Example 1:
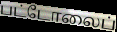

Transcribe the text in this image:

பட்டோலைப்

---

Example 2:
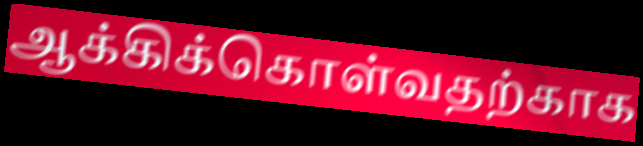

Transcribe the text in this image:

ஆக்கிக்கொள்வதற்காக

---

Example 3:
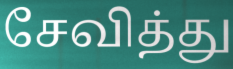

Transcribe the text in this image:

சேவித்து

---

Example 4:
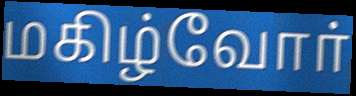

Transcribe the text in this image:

மகிழ்வோர்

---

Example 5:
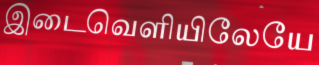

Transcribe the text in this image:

இடைவெளியிலேயே